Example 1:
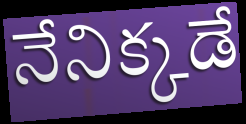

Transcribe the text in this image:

నేనిక్కడే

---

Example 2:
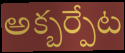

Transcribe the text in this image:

అక్బర్పేట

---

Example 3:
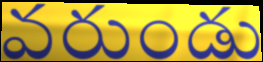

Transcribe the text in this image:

వరుండు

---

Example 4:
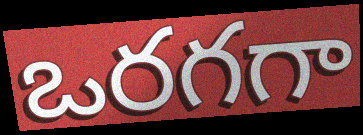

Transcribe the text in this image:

ఒరగగా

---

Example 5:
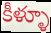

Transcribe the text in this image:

కీళ్ళూ